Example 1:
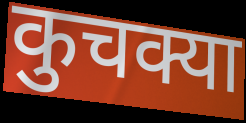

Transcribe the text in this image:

कुचक्या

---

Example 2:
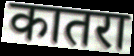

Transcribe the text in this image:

कातरा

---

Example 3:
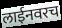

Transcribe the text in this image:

लाईनवरच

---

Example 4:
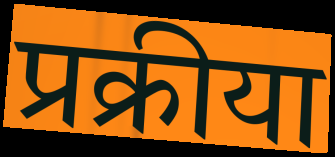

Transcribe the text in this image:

प्रक्रीया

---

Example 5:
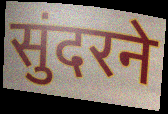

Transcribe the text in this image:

सुंदरने